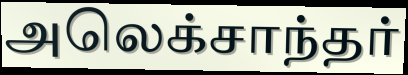
அலெக்சாந்தர்